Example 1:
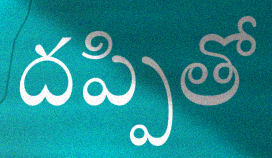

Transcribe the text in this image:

దప్పితో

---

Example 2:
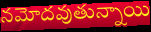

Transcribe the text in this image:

నమోదవుతున్నాయి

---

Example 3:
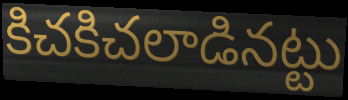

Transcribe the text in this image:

కిచకిచలాడినట్టు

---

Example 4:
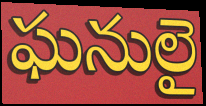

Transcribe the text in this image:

ఘనులై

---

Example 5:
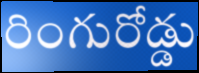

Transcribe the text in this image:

రింగురోడ్డు